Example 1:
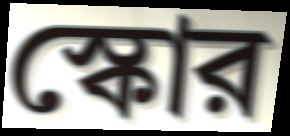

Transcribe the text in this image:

স্কোর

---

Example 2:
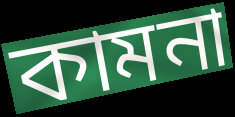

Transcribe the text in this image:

কামনা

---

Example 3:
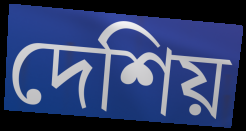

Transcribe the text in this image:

দেশিয়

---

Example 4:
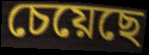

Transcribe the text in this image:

চেয়েছে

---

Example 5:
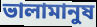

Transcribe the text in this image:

ভালামানুষ